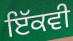
ਇੱਕਵੀ